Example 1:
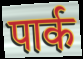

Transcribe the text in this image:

पार्क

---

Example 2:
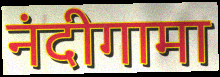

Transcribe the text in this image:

नंदीगामा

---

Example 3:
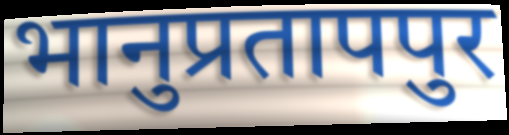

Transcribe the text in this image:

भानुप्रतापपुर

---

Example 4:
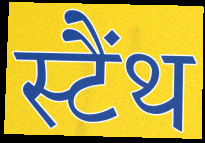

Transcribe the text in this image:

स्टैंथ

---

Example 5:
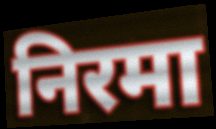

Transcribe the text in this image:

निरमा